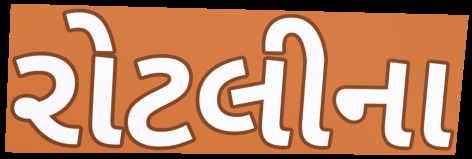
રોટલીના